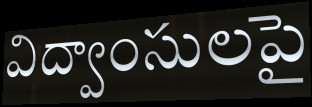
విద్వాంసులపై